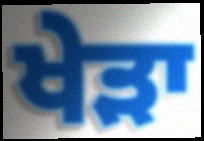
ਖੇੜਾ